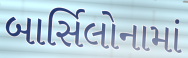
બાર્સિલોનામાં